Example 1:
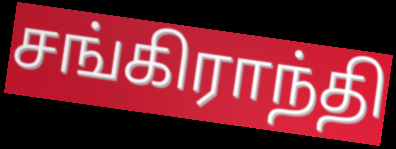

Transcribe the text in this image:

சங்கிராந்தி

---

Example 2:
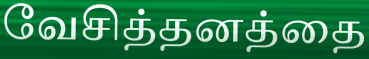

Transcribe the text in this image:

வேசித்தனத்தை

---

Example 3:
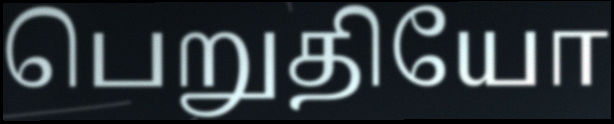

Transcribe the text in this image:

பெறுதியோ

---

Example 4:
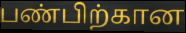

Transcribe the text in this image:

பண்பிற்கான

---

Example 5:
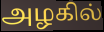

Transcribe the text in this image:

அழகில்